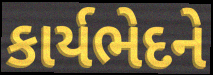
કાર્યભેદને